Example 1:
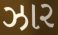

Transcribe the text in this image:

ઝાર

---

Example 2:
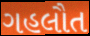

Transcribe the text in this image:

ગહલૌત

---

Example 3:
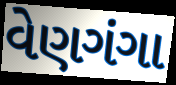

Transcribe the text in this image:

વેણગંગા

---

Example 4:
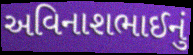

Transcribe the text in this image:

અવિનાશભાઈનું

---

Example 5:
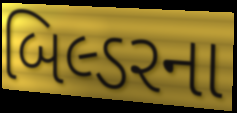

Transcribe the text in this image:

બિલ્ડરના